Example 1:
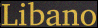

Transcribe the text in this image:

Libano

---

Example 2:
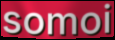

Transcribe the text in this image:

somoi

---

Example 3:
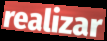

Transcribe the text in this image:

realizar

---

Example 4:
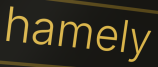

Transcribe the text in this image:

hamely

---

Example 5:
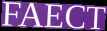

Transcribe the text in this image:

FAECT